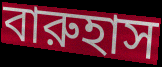
বারুহাস